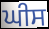
ਘੀਸ